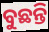
ବୁଛନ୍ତି